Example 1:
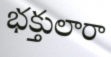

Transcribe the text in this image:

భక్తులారా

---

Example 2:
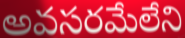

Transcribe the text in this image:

అవసరమేలేని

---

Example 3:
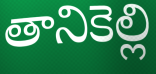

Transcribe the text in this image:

తానికెల్లి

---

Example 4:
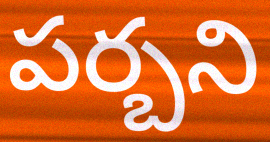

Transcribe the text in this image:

పర్బని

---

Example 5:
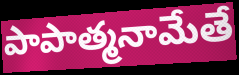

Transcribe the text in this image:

పాపాత్మనామేతే